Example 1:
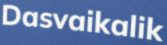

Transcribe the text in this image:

Dasvaikalik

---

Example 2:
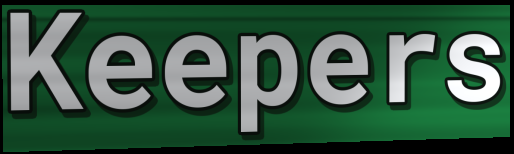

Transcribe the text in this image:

Keepers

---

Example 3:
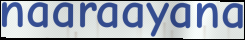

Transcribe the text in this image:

naaraayana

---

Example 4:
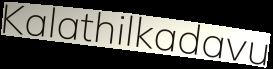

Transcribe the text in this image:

Kalathilkadavu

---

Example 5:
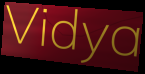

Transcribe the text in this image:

Vidya